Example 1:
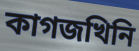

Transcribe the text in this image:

কাগজখিনি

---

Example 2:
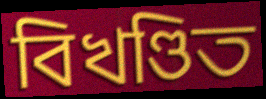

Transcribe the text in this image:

বিখণ্ডিত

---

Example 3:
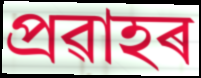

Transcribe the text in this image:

প্ৰৱাহৰ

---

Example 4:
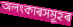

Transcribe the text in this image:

অলংকাৰসমূহৰ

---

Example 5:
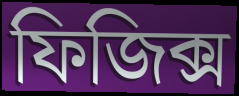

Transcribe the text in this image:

ফিজিক্স